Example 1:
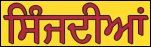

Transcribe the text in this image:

ਸਿੰਜਦੀਆਂ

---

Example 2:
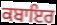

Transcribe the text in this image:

ਕਬਾਇਰ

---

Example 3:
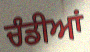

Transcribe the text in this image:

ਚੰਡੀਆਂ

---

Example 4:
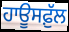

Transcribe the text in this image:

ਹਾਊਸਫ਼ੁੱਲ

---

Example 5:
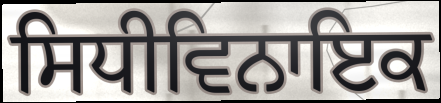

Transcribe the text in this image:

ਸਿਧੀਵਿਨਾਇਕ